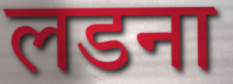
लडना